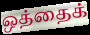
ஒத்தைக்